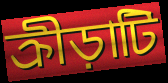
ক্রীড়াটি